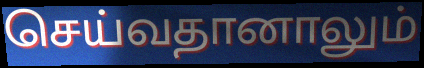
செய்வதானாலும்